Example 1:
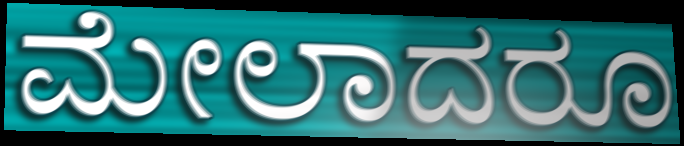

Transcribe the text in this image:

ಮೇಲಾದರೂ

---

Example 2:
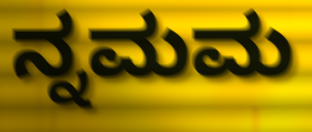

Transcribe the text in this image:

ನ್ನಮಮ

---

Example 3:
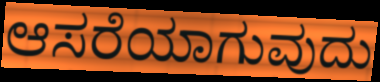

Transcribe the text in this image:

ಆಸರೆಯಾಗುವುದು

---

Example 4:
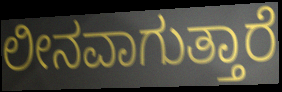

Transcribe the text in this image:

ಲೀನವಾಗುತ್ತಾರೆ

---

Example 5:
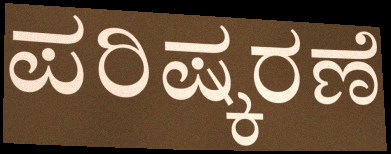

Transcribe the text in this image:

ಪರಿಷ್ಕರಣೆ